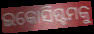
ଇକୋସିଷ୍ଟମକୁ